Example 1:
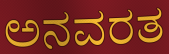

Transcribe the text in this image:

ಅನವರತ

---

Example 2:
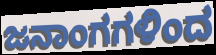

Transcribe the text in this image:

ಜನಾಂಗಗಳಿಂದ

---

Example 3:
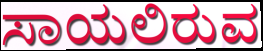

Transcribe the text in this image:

ಸಾಯಲಿರುವ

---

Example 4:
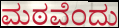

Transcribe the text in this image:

ಮಠವೆಂದು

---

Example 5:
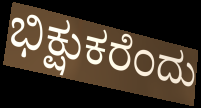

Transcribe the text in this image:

ಭಿಕ್ಷುಕರೆಂದು